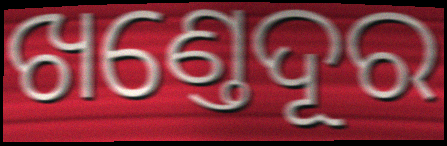
ଖଣ୍ତେଦୂର